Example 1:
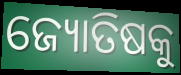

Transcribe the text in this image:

ଜ୍ୟୋତିଷକୁ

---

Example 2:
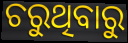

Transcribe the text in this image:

ଚରୁଥିବାରୁ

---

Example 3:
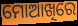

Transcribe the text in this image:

ମୋଆଖିରେ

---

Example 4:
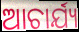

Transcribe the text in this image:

ଆଚାର୍ଯ୍ୟ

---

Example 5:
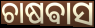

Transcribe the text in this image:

ଚାଷଵାସ